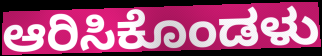
ಆರಿಸಿಕೊಂಡಳು